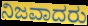
ನಿಜವಾದರು